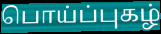
பொய்ப்புகழ்